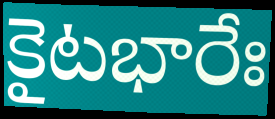
కైటభారేః